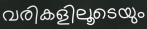
വരികളിലൂടെയും